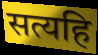
सत्यहि